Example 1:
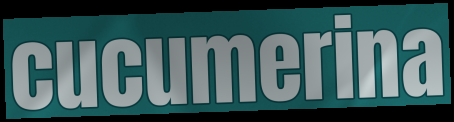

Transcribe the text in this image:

cucumerina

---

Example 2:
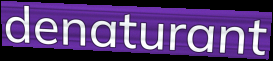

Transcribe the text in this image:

denaturant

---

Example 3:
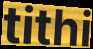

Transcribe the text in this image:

tithi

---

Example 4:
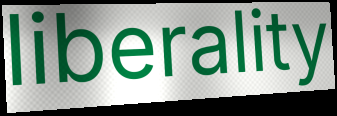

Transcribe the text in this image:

liberality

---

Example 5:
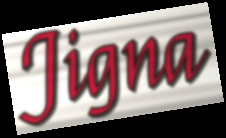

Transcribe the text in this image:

Jigna